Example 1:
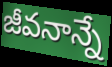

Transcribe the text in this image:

జీవనాన్నే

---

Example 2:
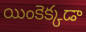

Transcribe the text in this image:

యింకెక్కడా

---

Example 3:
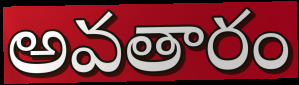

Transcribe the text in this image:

అవతారం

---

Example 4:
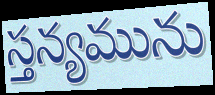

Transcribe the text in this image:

స్తన్యమును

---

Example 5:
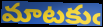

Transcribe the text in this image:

మాటకుఁ